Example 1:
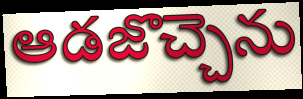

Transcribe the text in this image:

ఆడజొచ్చెను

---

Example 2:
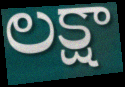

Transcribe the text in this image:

లక్షా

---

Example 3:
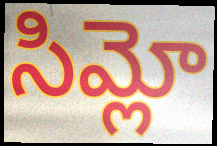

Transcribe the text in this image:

సిమ్లో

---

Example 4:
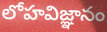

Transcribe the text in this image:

లోహవిజ్ఞానం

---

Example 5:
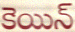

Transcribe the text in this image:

కెయిన్